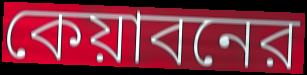
কেয়াবনের